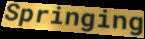
Springing